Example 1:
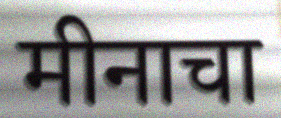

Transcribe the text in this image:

मीनाचा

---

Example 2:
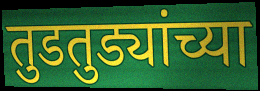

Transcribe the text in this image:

तुडतुड्यांच्या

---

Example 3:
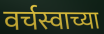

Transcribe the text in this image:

वर्चस्वाच्या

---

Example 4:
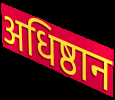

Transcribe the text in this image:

अधिष्ठान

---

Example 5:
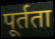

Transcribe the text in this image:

पूर्तता